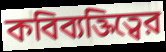
কবিব্যক্তিত্বের